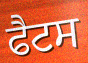
ਫੈਟਸ